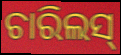
ଚାରିଲସ୍